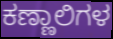
ಕಣ್ಣಾಲಿಗಳ